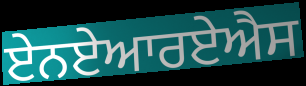
ਏਨਏਆਰਏਐਸ